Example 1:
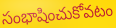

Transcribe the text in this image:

సంభాషించుకోవటం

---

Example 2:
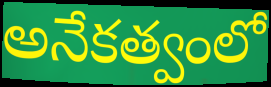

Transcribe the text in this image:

అనేకత్వంలో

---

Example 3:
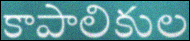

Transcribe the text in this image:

కాపాలికుల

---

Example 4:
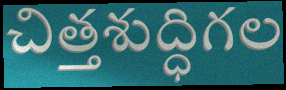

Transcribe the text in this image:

చిత్తశుద్ధిగల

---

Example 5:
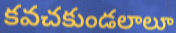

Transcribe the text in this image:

కవచకుండలాలూ